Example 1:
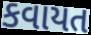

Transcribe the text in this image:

કવાયત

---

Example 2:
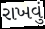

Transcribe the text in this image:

રાખવું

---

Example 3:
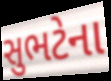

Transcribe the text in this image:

સુભટેના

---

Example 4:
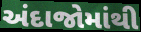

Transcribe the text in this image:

અંદાજોમાંથી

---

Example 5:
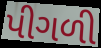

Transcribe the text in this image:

પીગળી